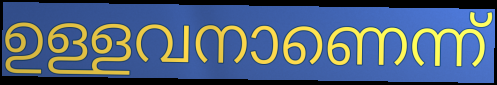
ഉള്ളവനാണെന്ന്